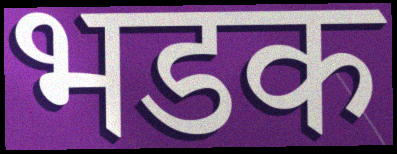
भडक